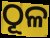
ଠୂଳ